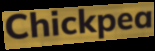
Chickpea